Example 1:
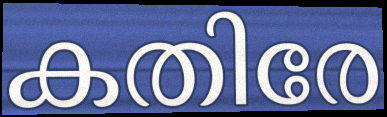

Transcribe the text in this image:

കതിരേ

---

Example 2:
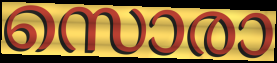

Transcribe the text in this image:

സൊരാ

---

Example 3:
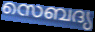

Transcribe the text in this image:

സെബദ്യ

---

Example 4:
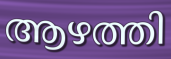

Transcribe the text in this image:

ആഴത്തി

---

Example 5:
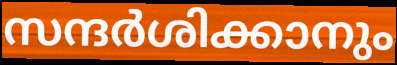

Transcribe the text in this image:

സന്ദർശിക്കാനും